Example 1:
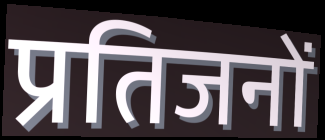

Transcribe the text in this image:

प्रतिजनों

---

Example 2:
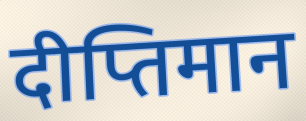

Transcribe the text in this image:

दीप्तिमान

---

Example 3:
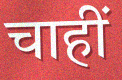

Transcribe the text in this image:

चाहीं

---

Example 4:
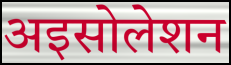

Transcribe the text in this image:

अइसोलेशन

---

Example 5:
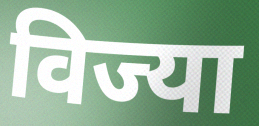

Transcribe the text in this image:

विज्या